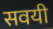
सवयी